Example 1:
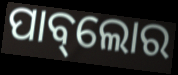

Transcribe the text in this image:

ପାବ୍‌ଲୋର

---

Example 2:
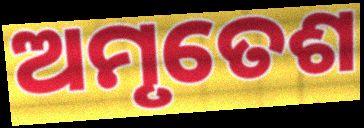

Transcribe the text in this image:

ଅମୃତେଶ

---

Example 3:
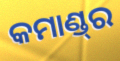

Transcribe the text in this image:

କମାଣ୍ଡ୍‌ର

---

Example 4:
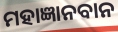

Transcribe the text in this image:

ମହାଜ୍ଞାନବାନ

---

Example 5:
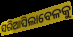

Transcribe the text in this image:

ସରିଆସିଲାବେଳକୁ